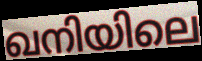
ഖനിയിലെ